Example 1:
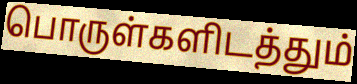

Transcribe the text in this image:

பொருள்களிடத்தும்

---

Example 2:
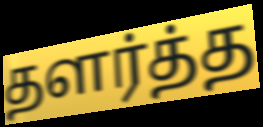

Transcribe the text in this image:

தளர்த்த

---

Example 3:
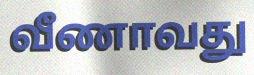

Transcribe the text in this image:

வீணாவது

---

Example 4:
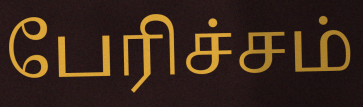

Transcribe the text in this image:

பேரிச்சம்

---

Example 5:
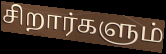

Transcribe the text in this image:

சிறார்களும்